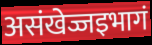
असंखेज्जइभागं